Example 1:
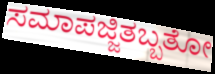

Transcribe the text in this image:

ಸಮಾಪಜ್ಜಿತಬ್ಬತೋ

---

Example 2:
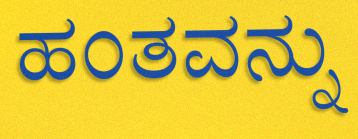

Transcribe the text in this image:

ಹಂತವನ್ನು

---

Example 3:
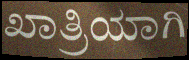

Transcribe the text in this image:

ಖಾತ್ರಿಯಾಗಿ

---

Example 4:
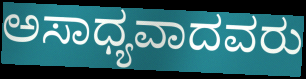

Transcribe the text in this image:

ಅಸಾಧ್ಯವಾದವರು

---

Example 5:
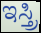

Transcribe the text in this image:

ಇಸ್ತ್ರಿ